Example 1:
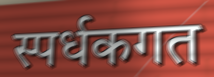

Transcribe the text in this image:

स्पर्धकगत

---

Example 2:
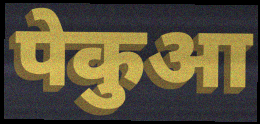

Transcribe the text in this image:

पेकुआ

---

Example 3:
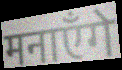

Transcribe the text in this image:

मनाएँगे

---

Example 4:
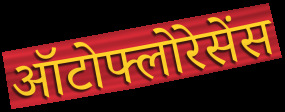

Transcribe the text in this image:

ऑटोफ्लोरेसेंस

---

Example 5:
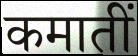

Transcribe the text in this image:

कमातीं